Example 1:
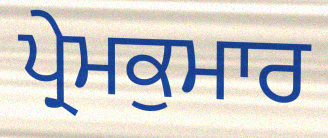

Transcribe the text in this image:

ਪ੍ਰੇਮਕੁਮਾਰ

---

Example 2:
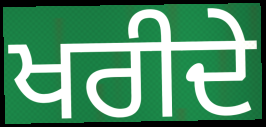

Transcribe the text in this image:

ਖਰੀਦੇ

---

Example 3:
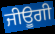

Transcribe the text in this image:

ਜੀਊਗੀ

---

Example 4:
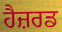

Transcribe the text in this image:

ਹੈਜ਼ਰਡ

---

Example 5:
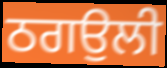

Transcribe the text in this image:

ਠਗਉਲੀ